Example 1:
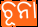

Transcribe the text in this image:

ଚୂନା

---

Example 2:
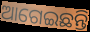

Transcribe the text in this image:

ଆଗେଇଛନ୍ତି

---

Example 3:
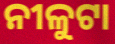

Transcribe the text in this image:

ନୀଳୁଟା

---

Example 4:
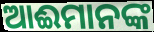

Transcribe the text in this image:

ଆଈମାନଙ୍କ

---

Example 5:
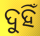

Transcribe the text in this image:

ଦୁହିଁ